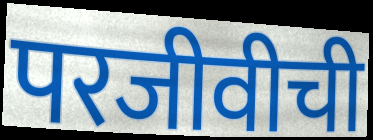
परजीवीची